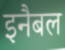
इनैबल